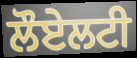
ਲੌਏਲਟੀ